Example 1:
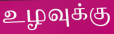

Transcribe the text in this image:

உழவுக்கு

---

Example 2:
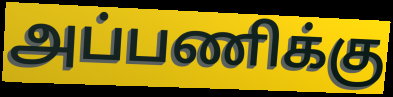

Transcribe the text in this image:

அப்பணிக்கு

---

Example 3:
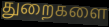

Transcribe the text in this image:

துறைகளை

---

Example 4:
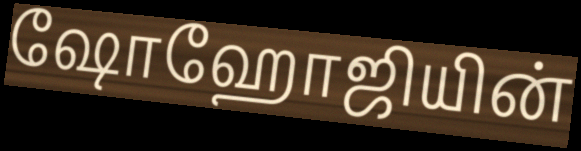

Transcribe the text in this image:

ஷோஹோஜியின்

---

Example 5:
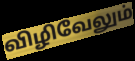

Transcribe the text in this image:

விழிவேலும்